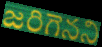
జరిగెనని